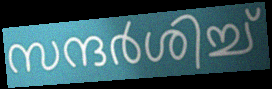
സന്ദർശിച്ച്